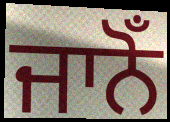
ਜਾਨੋਁ